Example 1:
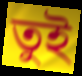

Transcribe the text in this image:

তুই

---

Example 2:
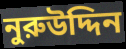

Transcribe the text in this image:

নুরুউদ্দিন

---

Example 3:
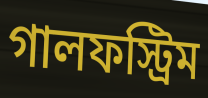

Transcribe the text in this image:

গালফস্ট্রিম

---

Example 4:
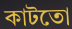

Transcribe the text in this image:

কাটতো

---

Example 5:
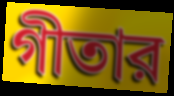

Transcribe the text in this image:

গীতার